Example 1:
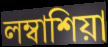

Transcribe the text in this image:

লম্বাশিয়া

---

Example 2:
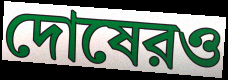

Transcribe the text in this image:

দোষেরও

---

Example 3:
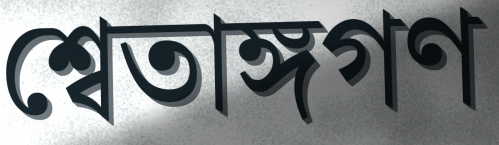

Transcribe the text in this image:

শ্বেতাঙ্গগণ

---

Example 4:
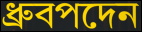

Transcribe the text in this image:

ধ্রুবপদেন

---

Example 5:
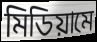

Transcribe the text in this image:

মিডিয়ামে